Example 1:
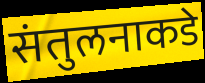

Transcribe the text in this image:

संतुलनाकडे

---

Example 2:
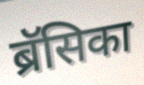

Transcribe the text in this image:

ब्रॅसिका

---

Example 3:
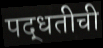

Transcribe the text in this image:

पद्धतीची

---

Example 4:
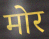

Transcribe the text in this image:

मोर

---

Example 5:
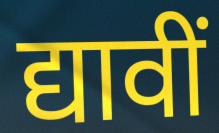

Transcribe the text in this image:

द्यावीं